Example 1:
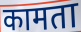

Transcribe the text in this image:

कामता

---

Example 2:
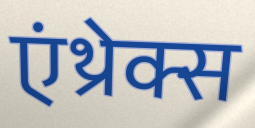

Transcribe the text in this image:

एंथ्रेक्स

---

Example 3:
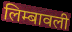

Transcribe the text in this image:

लिम्बावली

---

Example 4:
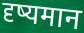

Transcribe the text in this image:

दृष्यमान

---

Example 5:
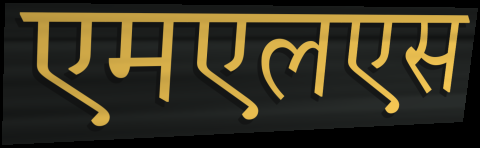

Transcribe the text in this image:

एमएलएस